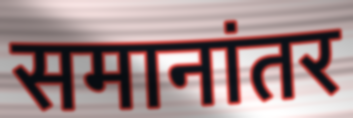
समानांतर